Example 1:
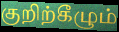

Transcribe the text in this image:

குறிற்கீழும்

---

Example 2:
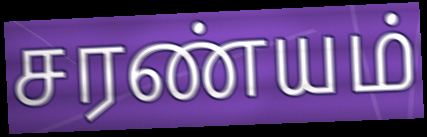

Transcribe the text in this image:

சரண்யம்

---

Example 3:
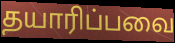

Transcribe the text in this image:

தயாரிப்பவை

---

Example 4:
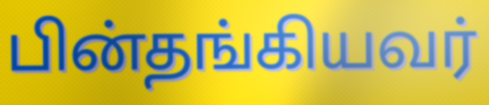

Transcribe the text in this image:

பின்தங்கியவர்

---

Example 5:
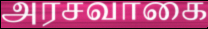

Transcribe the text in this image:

அரசவாகை